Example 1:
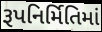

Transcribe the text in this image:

રૂપનિર્મિતિમાં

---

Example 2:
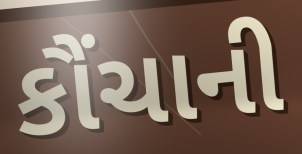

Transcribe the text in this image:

કૌંચાની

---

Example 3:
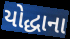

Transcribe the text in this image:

યોદ્ધાના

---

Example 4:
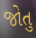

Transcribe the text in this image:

જોતુ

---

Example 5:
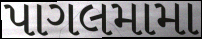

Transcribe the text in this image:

પાગલમામા